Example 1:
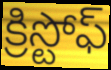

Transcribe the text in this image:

క్రిస్టోఫ్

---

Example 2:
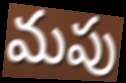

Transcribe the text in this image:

మపు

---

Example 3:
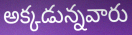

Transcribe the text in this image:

అక్కడున్నవారు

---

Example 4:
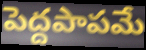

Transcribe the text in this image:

పెద్దపాపమే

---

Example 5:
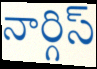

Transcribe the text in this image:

నార్గిస్